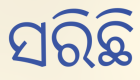
ସରିଛି